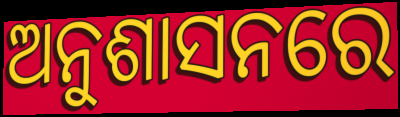
ଅନୁଶାସନରେ